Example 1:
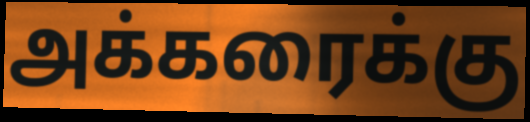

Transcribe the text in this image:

அக்கரைக்கு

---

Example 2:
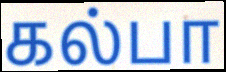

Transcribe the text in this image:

கல்பா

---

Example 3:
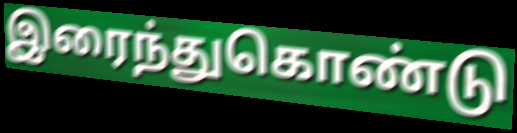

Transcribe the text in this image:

இரைந்துகொண்டு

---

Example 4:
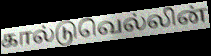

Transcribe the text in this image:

கால்டுவெல்லின்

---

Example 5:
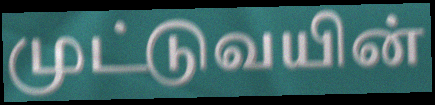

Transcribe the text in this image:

முட்டுவயின்